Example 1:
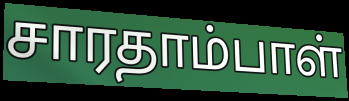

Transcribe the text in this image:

சாரதாம்பாள்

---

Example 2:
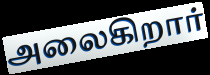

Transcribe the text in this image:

அலைகிறார்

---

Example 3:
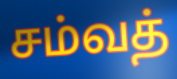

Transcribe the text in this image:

சம்வத்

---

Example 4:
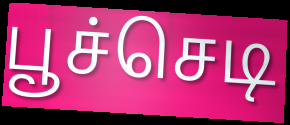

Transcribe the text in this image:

பூச்செடி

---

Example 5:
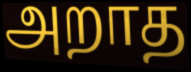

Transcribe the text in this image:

அறாத